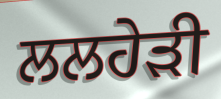
ਲਲਹੇੜੀ